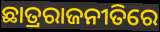
ଛାତ୍ରରାଜନୀତିରେ